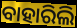
ବାହାରିଲି